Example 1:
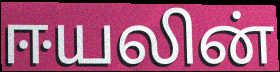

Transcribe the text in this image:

ஈயலின்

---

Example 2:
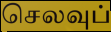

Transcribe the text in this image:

செலவுப்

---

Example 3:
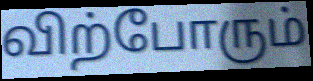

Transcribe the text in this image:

விற்போரும்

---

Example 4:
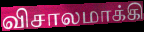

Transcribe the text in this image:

விசாலமாக்கி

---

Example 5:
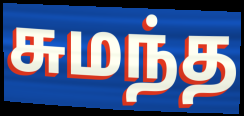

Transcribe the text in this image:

சுமந்த